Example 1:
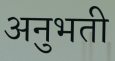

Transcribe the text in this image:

अनुभती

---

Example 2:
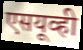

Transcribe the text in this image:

एसयूव्ही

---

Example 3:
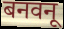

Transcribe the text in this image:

बनवनू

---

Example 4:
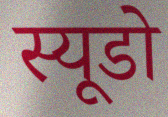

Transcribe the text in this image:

स्यूडो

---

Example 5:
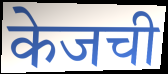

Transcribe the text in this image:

केजची